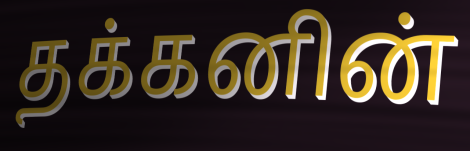
தக்கனின்